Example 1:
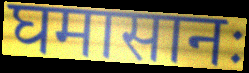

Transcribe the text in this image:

घमासानः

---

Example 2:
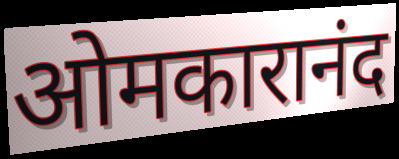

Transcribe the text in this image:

ओमकारानंद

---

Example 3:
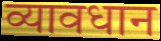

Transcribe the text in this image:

व्यावधान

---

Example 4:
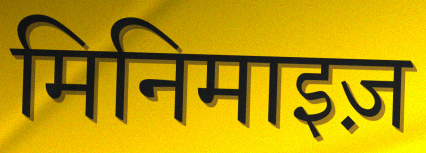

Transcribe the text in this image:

मिनिमाइज़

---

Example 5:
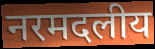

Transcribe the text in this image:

नरमदलीय